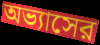
অভ্যাসের